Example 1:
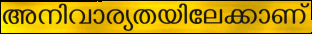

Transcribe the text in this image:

അനിവാര്യതയിലേക്കാണ്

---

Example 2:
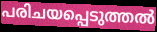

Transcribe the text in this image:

പരിചയപ്പെടുത്തൽ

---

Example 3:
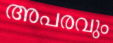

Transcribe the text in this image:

അപരവും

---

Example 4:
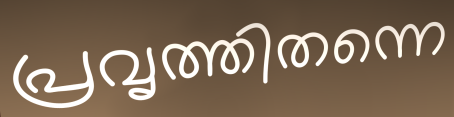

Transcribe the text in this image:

പ്രവൃത്തിതന്നെ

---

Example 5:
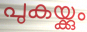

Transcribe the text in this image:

പുകയ്ക്കും